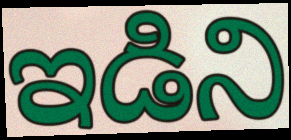
ఇడిని